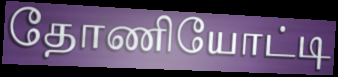
தோணியோட்டி